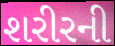
શરીરની